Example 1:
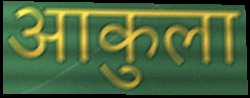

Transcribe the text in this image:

आकुला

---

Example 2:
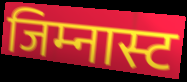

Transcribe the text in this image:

जिम्नास्ट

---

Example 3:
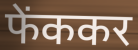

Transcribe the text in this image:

फेंककर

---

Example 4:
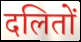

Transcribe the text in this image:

दलितों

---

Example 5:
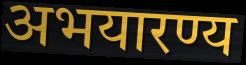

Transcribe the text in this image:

अभयारण्य